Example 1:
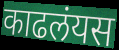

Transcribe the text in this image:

काढलंयस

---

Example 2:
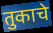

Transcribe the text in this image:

तुकाचे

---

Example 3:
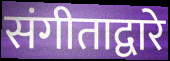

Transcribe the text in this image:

संगीताद्वारे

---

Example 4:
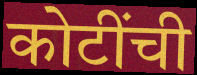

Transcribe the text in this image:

कोटींची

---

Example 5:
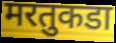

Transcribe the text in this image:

मरतुकडा